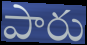
పారు